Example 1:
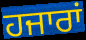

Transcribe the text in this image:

ਹਜਾਰਾਂ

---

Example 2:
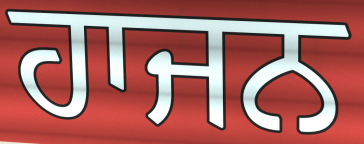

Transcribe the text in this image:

ਹਾਜਨ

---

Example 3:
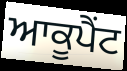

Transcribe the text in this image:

ਆਕੂਪੈਂਟ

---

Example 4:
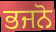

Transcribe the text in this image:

ਭਜਨੋ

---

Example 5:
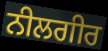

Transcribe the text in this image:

ਨੀਲਗੀਰ